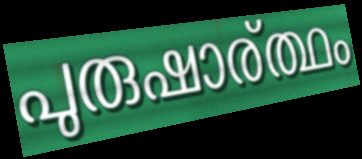
പുരുഷാര്ത്ഥം